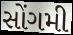
સોંગમી